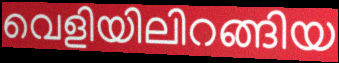
വെളിയിലിറങ്ങിയ